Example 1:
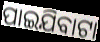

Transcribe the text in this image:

ପାଇଯିବାଟା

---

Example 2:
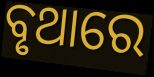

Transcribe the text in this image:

ବୃଥାରେ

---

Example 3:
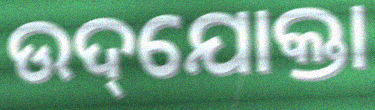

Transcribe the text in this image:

ଉଦ୍‌ଯୋକ୍ତା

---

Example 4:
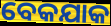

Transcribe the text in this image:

ବେକଯାକ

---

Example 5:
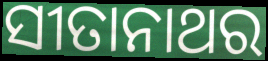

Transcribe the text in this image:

ସୀତାନାଥର